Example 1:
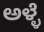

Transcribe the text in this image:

ಅಳ್ಳೆ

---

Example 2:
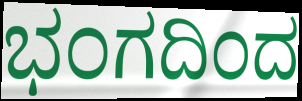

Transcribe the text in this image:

ಭಂಗದಿಂದ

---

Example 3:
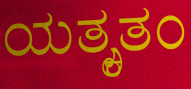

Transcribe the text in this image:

ಯತ್ಕೃತಂ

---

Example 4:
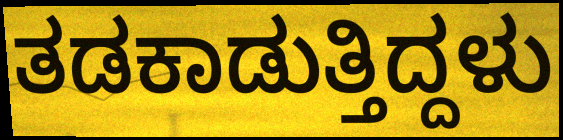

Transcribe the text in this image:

ತಡಕಾಡುತ್ತಿದ್ದಳು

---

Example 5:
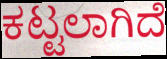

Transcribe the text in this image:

ಕಟ್ಟಲಾಗಿದೆ